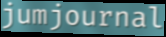
jumjournal